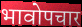
भावोपचार